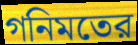
গনিমতের